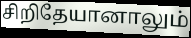
சிறிதேயானாலும்